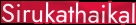
Sirukathaikal